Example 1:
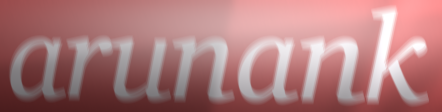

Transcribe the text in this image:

arunank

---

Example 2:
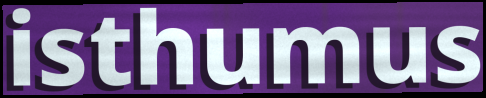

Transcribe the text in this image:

isthumus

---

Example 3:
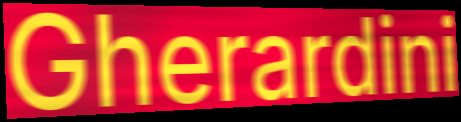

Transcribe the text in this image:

Gherardini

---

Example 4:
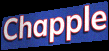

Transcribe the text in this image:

Chapple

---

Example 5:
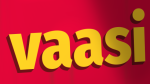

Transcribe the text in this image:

vaasi